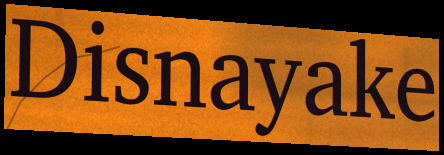
Disnayake